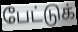
பேட்டுக்